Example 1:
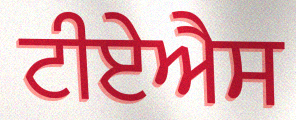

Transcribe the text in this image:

ਟੀਏਐਸ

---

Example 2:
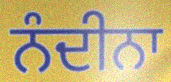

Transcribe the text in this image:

ਨੰਦੀਨਾ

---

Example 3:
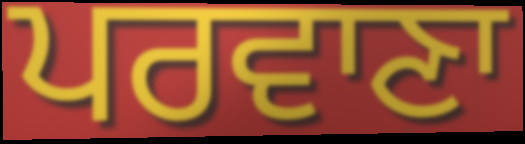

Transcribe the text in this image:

ਪਰਵਾਣਾ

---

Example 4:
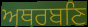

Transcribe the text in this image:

ਅਥਰਬਣਿ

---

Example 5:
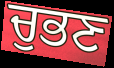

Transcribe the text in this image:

ਚੁਭਣ